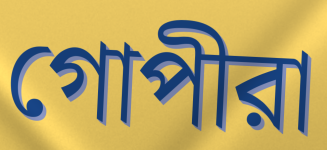
গোপীরা